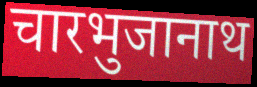
चारभुजानाथ